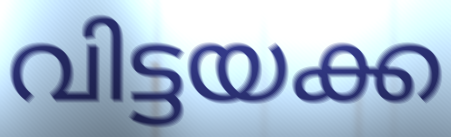
വിട്ടയക്ക